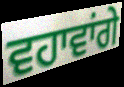
ਵਹਾਵਾਂਗੇ